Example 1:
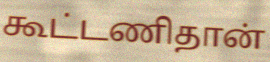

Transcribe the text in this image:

கூட்டணிதான்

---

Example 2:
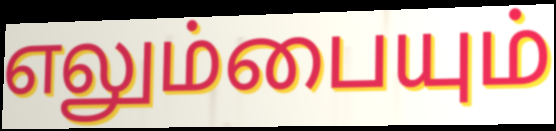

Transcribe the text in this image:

எலும்பையும்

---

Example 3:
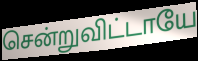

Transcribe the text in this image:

சென்றுவிட்டாயே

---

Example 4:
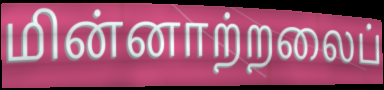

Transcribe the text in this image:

மின்னாற்றலைப்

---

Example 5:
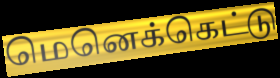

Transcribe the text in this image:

மெனெக்கெட்டு